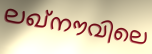
ലഖ്നൗവിലെ